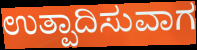
ಉತ್ಪಾದಿಸುವಾಗ